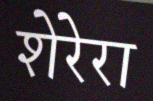
शेरेरा